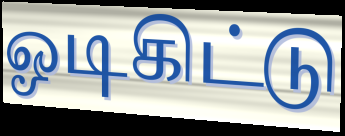
ஓடிகிட்டு